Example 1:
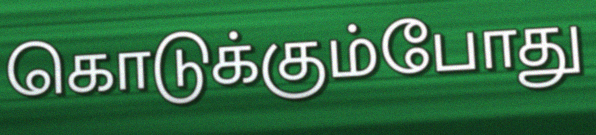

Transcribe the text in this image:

கொடுக்கும்போது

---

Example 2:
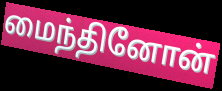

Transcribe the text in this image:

மைந்தினோன்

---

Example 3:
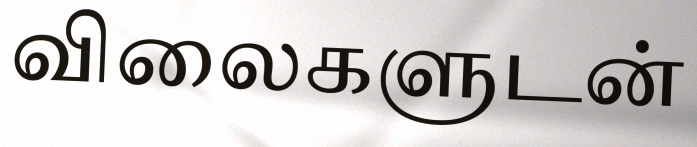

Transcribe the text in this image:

விலைகளுடன்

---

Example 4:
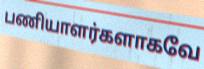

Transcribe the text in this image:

பணியாளர்களாகவே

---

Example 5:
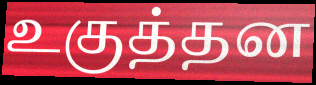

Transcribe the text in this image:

உகுத்தன